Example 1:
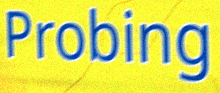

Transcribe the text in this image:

Probing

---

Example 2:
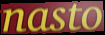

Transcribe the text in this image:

nasto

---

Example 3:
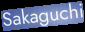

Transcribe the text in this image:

Sakaguchi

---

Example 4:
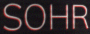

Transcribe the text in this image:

SOHR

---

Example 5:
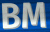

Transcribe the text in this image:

BM